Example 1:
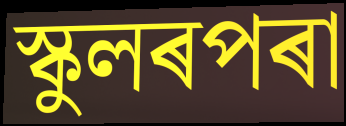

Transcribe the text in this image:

স্কুলৰপৰা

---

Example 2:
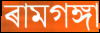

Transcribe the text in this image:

ৰামগঙ্গা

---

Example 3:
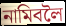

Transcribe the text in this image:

নামিবলৈ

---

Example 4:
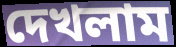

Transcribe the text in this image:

দেখলাম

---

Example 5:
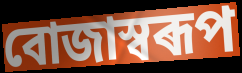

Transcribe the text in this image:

বোজাস্বৰূপ